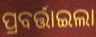
ପ୍ରବର୍ତ୍ତାଇଲା